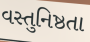
વસ્તુનિષ્ઠતા